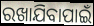
ରଖାଯିବାପାଇଁ